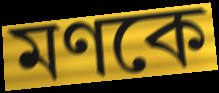
মণকে